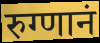
रुग्णानं